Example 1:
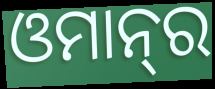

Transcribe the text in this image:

ଓମାନ୍‌ର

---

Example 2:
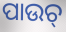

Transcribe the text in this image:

ପାଉଚ୍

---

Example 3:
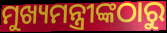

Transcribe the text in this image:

ମୁଖ୍ୟମନ୍ତ୍ରୀଙ୍କଠାରୁ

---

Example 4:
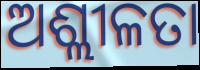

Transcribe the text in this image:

ଅଶ୍ଲୀଳତା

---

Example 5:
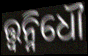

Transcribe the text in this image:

ତ୍ତ୍ଵନ୍ନିଧୌ